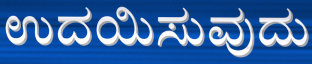
ಉದಯಿಸುವುದು